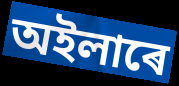
অইলাৰে